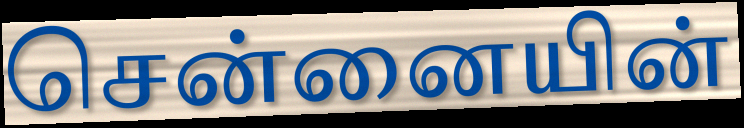
சென்னையின்